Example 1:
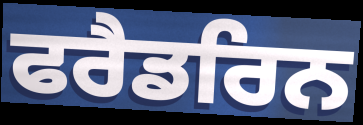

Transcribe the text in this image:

ਫਰੈਡਰਿਨ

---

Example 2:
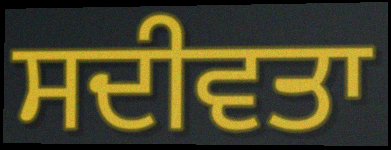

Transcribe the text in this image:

ਸਦੀਵਤਾ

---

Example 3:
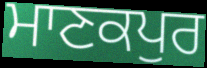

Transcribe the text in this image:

ਮਾਣਕਪੁਰ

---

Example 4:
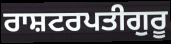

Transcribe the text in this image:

ਰਾਸ਼ਟਰਪਤੀਗੁਰੂ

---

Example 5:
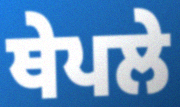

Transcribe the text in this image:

ਥੇਪਲੇ